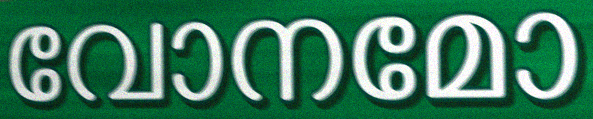
വോനമോ